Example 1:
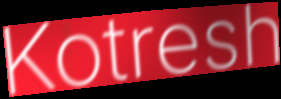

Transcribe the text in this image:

Kotresh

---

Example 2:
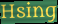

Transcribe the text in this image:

Hsing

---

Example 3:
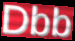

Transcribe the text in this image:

Dbb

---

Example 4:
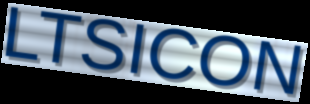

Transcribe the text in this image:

LTSICON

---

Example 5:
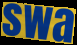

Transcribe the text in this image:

swa